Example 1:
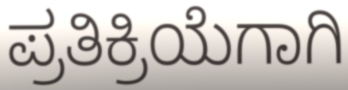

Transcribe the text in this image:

ಪ್ರತಿಕ್ರಿಯೆಗಾಗಿ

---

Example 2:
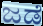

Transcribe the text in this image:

ಜಡೆ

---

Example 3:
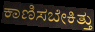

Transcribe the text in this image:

ಕಾಣಿಸಬೇಕಿತ್ತು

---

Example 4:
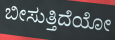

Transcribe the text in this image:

ಬೀಸುತ್ತಿದೆಯೋ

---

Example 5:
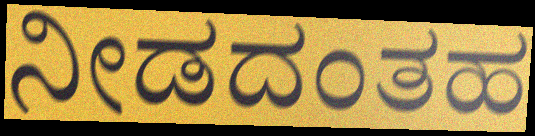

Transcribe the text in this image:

ನೀಡದಂತಹ